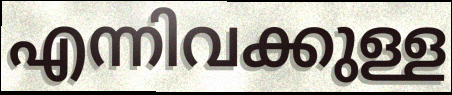
എന്നിവക്കുള്ള